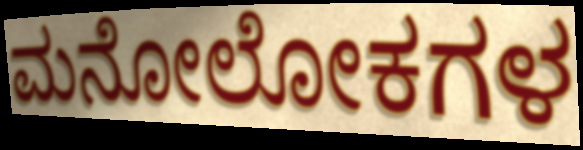
ಮನೋಲೋಕಗಳ